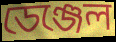
ডেঞ্জেল